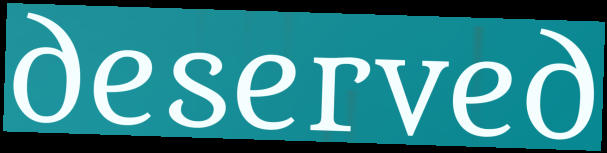
deserved